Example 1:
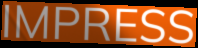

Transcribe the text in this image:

IMPRESS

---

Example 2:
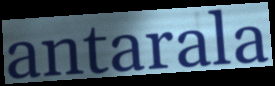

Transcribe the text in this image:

antarala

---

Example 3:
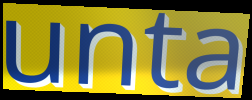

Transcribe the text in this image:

unta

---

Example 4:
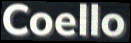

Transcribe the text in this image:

Coello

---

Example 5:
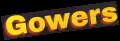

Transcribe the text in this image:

Gowers